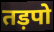
तड़पो